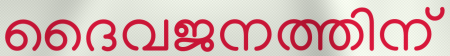
ദൈവജനത്തിന്